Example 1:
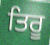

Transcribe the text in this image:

ਤਿਰੂ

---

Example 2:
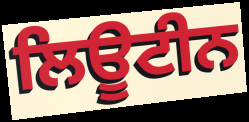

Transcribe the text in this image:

ਲਿਊਟੀਨ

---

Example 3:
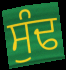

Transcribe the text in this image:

ਸੁੰਢ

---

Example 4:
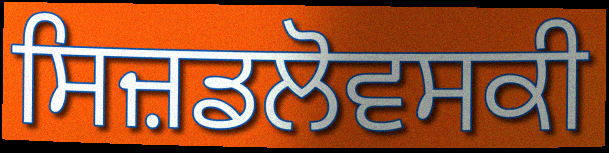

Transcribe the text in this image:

ਸਿਜ਼ਡਲੋਵਸਕੀ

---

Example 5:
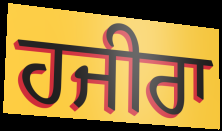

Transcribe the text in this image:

ਹਜੀਰਾ